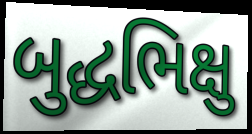
બુદ્ધભિક્ષુ